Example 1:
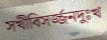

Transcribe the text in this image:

সখীবিসর্জ্জনদুঃখ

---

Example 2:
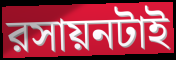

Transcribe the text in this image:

রসায়নটাই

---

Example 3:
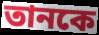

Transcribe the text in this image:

তানকে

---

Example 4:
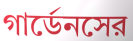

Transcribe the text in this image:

গার্ডেনসের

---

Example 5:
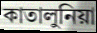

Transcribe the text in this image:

কাতালুনিয়া